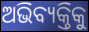
ଅଭିବ୍ୟକ୍ତିକୁ